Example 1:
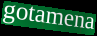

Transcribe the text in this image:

gotamena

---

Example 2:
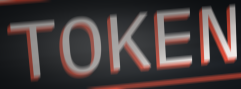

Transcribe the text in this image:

TOKEN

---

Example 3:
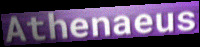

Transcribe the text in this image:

Athenaeus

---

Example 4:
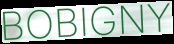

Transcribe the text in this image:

BOBIGNY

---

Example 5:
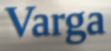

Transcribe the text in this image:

Varga